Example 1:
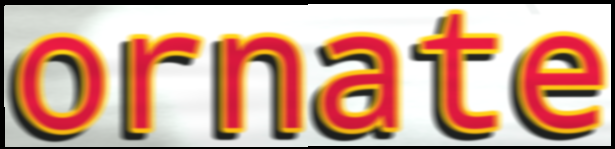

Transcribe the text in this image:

ornate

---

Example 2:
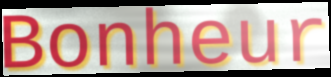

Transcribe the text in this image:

Bonheur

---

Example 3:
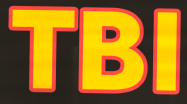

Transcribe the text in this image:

TBI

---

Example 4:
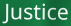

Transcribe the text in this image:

Justice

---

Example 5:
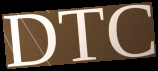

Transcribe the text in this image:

DTC